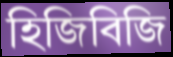
হিজিবিজি